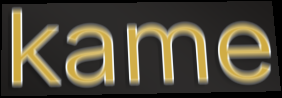
kame